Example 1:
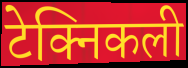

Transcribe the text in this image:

टेक्निकली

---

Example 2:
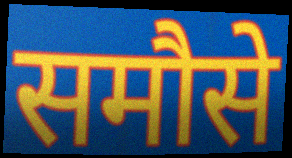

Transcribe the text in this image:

समौसे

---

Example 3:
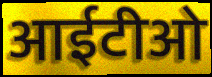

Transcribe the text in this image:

आईटीओ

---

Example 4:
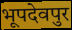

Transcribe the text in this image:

भूपदेवपुर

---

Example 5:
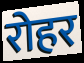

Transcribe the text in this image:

रोहर